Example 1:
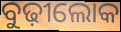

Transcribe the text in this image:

ବୁଢ଼ୀଲୋକ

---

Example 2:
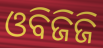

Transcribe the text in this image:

ଓବିଜିଜି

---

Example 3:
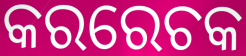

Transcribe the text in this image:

କରରେଚକ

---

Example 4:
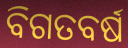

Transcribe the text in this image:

ବିଗତବର୍ଷ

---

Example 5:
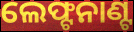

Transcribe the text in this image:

ଲେଫ୍ଟନାଣ୍ଟ